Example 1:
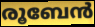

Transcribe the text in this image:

രൂബേൻ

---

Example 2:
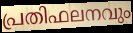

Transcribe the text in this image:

പ്രതിഫലനവും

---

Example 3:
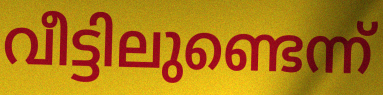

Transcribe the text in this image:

വീട്ടിലുണ്ടെന്ന്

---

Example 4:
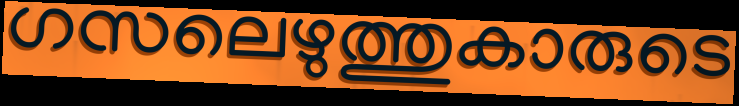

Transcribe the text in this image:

ഗസലെഴുത്തുകാരുടെ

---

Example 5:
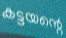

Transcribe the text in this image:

കട്ടയന്റെ